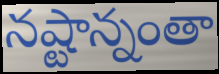
నష్టాన్నంతా